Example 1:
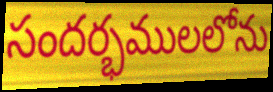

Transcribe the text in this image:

సందర్భములలోను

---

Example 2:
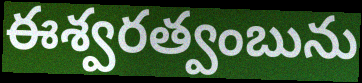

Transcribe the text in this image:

ఈశ్వరత్వంబును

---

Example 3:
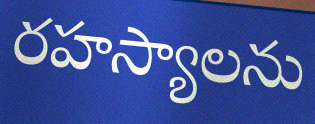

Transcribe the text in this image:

రహస్యాలను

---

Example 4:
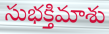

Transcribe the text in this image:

సుభక్తిమాశు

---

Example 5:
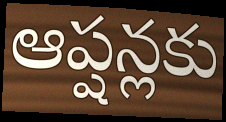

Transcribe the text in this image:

ఆప్షన్లకు